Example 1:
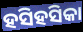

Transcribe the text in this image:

ହସିହସିକା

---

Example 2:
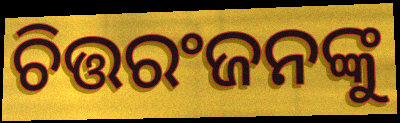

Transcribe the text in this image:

ଚିତ୍ତରଂଜନଙ୍କୁ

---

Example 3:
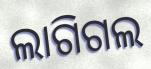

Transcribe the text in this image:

ଲାଗିଗଲ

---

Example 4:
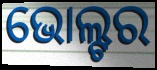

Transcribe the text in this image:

ଭୋଲ୍ଟର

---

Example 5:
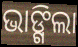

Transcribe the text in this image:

ଭାଙ୍ଗିଲା